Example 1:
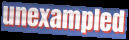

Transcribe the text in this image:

unexampled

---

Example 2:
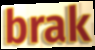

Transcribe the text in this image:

brak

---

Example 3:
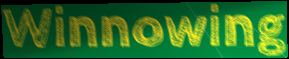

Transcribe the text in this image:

Winnowing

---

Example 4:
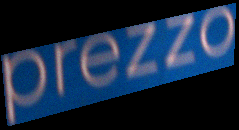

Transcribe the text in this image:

prezzo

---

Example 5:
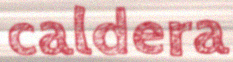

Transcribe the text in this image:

caldera